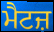
ਮੈਟਜ਼